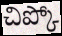
చిప్కో